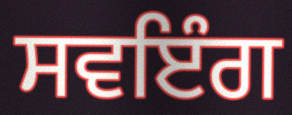
ਸਵਇੰਗ